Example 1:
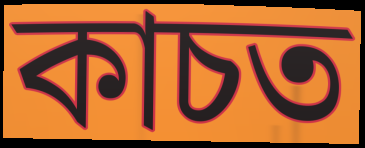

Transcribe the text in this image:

কাচত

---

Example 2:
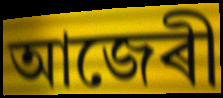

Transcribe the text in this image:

আজেৰী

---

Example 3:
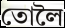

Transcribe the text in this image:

তোলৈ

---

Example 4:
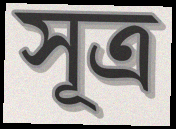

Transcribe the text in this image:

সূত্ৰ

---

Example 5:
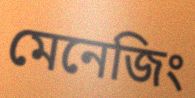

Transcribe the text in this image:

মেনেজিং